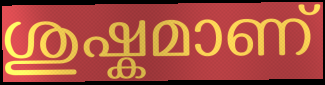
ശുഷ്കമാണ്